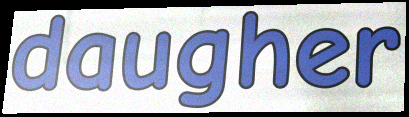
daugher